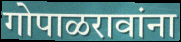
गोपाळरावांना